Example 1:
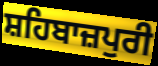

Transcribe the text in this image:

ਸ਼ਹਿਬਾਜ਼ਪੁਰੀ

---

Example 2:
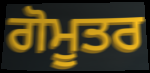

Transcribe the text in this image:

ਗੋਮੂਤਰ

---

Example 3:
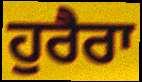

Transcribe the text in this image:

ਹੁਰੈਰਾ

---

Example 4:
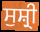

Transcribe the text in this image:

ਸੁਸ਼੍ਰੀ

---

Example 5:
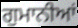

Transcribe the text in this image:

ਗੁਮਾਨੀਆਂ